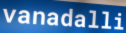
vanadalli